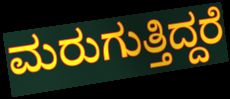
ಮರುಗುತ್ತಿದ್ದರೆ